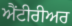
ਐਂਟੀਰੀਅਰ